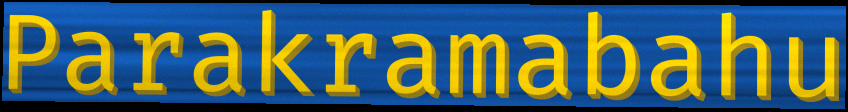
Parakramabahu